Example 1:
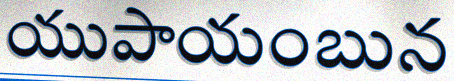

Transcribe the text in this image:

యుపాయంబున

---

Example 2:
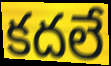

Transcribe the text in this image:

కదలే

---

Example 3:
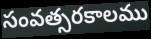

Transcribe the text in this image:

సంవత్సరకాలము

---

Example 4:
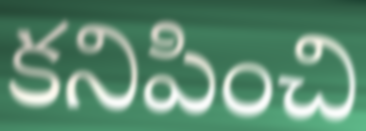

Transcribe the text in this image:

కనిపించి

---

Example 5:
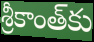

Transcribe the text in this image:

శ్రీకాంత్‌కు